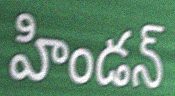
హిండన్